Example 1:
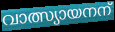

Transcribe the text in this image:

വാത്സ്യായനന്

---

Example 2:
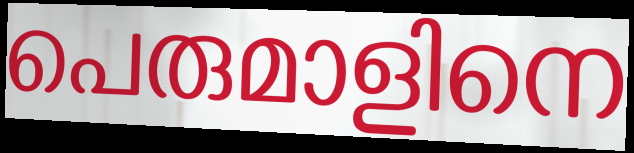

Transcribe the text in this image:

പെരുമാളിനെ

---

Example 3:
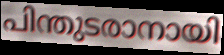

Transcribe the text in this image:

പിന്തുടരാനായി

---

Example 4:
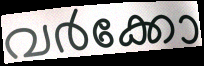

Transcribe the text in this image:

വർക്കോ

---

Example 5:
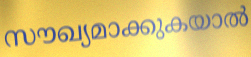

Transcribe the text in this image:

സൗഖ്യമാക്കുകയാൽ